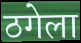
ठगेला